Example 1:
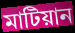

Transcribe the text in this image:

মাটিয়ান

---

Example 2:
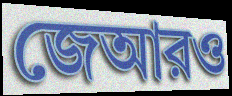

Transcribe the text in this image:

জেআরও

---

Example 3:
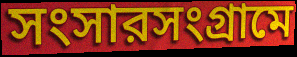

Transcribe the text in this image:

সংসারসংগ্রামে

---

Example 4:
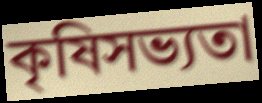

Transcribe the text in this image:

কৃষিসভ্যতা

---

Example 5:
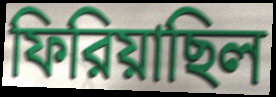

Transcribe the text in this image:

ফিরিয়াছিল